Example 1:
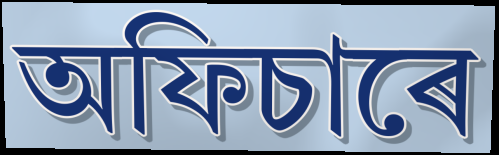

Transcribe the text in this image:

অফিচাৰে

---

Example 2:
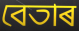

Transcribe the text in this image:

বেতাৰ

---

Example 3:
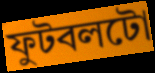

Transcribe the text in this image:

ফুটবলটো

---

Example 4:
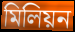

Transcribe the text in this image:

মিলিয়ন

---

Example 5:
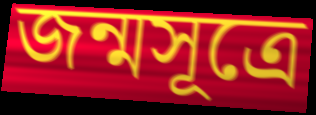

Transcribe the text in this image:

জন্মসূত্ৰে